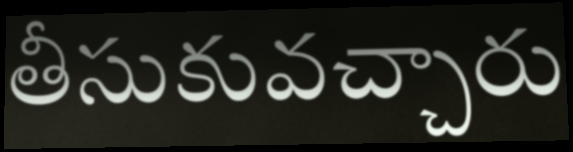
తీసుకువచ్చారు